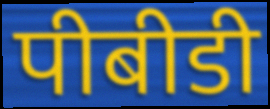
पीबीडी